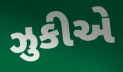
ઝુકીએ